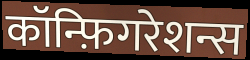
कॉन्फ़िगरेशन्स